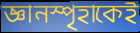
জ্ঞানস্পৃহাকেই